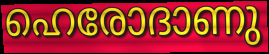
ഹെരോദാണു